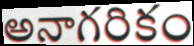
అనాగరికం